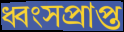
ধ্বংসপ্রাপ্ত